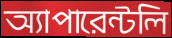
অ্যাপারেন্টলি